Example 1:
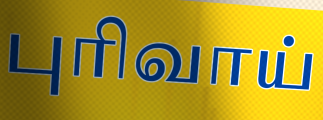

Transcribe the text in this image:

புரிவாய்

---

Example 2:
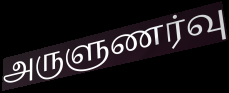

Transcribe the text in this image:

அருளுணர்வு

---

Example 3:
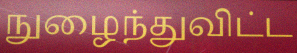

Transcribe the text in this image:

நுழைந்துவிட்ட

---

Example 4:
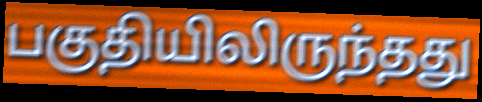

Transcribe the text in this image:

பகுதியிலிருந்தது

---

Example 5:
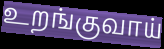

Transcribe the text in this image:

உறங்குவாய்